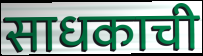
साधकाची